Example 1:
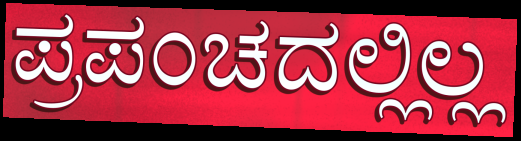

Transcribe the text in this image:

ಪ್ರಪಂಚದಲ್ಲಿಲ್ಲ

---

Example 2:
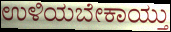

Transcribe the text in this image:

ಉಳಿಯಬೇಕಾಯ್ತು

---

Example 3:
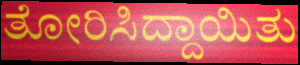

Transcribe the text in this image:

ತೋರಿಸಿದ್ದಾಯಿತು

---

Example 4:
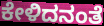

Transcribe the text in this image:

ಕೇಳಿದನಂತೆ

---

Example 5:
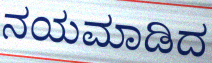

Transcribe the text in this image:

ನಯಮಾಡಿದ